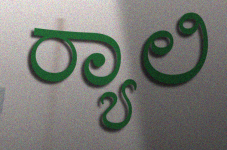
ರ‍್ಯಾಲಿ